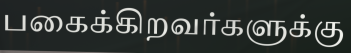
பகைக்கிறவர்களுக்கு